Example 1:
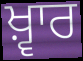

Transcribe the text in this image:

ਖ਼੍ਵਾਰ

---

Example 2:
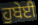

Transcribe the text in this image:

ਹੁਬੇਈ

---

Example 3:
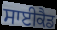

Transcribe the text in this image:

ਸਾਈਕੈਡ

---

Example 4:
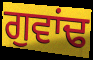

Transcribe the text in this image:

ਗੁਵਾਂਢ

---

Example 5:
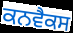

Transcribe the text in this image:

ਕਨਵੈਕਸ